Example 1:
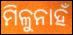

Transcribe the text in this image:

ମିଳୁନାହଁ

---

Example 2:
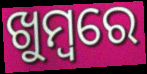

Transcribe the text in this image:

ଖୁମ୍ବରେ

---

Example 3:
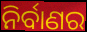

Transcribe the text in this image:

ନିର୍ବାଣର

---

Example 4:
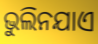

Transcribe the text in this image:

ଭୁଲିନଯାଏ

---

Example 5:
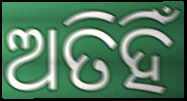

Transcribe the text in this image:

ଅତିହିଁ